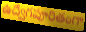
ఉద్వేగపూరితంగా